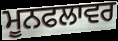
ਮੂਨਫਲਾਵਰ